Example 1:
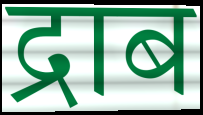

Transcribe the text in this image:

द्राब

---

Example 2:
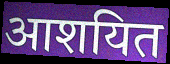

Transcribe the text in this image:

आशयित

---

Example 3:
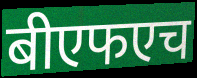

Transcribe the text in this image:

बीएफएच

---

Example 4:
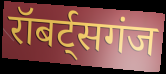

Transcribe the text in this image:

रॉबर्ट्सगंज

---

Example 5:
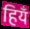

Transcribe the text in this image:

हियँ